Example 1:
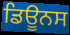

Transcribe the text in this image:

ਡਿਊਨਸ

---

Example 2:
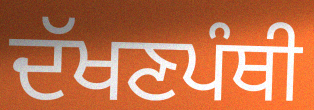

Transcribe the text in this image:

ਦੱਖਣਪੰਥੀ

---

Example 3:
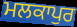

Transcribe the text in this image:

ਮਲਕਾਪੁਰ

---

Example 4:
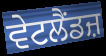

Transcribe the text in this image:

ਵੇਟਲੈਂਡਜ਼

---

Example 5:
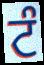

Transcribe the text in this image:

ਟੰ